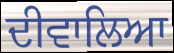
ਦੀਵਾਲਿਆ